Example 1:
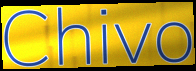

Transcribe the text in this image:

Chivo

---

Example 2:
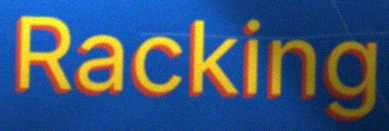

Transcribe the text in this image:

Racking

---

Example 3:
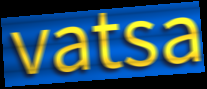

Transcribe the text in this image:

vatsa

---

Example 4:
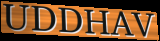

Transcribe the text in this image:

UDDHAV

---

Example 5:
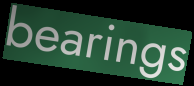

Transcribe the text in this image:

bearings